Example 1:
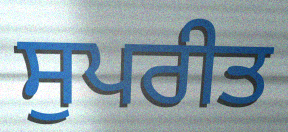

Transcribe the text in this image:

ਸੁਪਰੀਤ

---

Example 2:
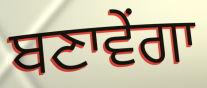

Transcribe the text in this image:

ਬਣਾਵੇਂਗਾ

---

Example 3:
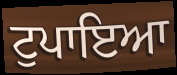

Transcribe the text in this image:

ਟੁਪਾਇਆ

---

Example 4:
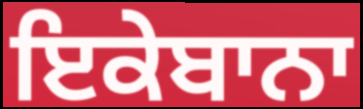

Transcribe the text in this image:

ਇਕੇਬਾਨਾ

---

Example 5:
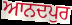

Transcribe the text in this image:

ਆਨਦਪੁਰ